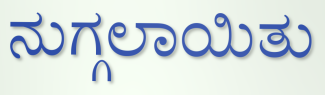
ನುಗ್ಗಲಾಯಿತು